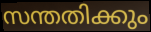
സന്തതിക്കും